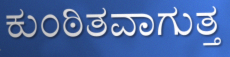
ಕುಂಠಿತವಾಗುತ್ತ